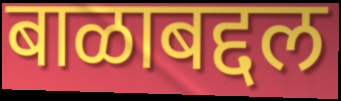
बाळाबद्दल